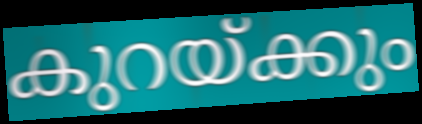
കുറയ്ക്കും